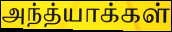
அந்த்யாக்கள்